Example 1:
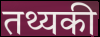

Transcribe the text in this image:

तथ्यकी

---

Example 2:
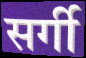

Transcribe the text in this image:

सर्गी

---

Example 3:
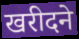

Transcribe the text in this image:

खरीदने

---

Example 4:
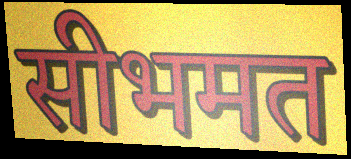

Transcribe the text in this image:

सीभमत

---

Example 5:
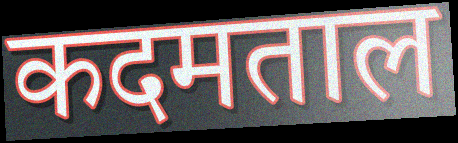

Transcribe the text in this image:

कदमताल